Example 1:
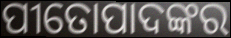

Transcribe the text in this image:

ପୀତୋପାଦଙ୍କର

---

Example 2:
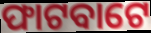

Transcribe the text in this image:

ଫାଟବାଟେ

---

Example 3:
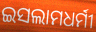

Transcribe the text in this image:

ଇସଲାମଧର୍ମୀ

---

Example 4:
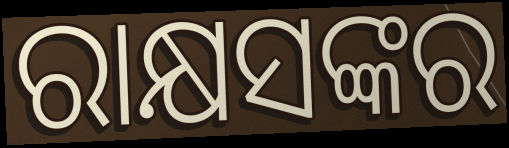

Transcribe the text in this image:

ରାକ୍ଷସଙ୍କର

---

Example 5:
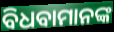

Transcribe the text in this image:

ବିଧବାମାନଙ୍କ